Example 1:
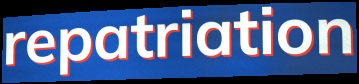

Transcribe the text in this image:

repatriation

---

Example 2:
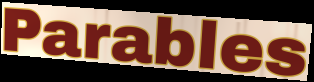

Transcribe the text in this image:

Parables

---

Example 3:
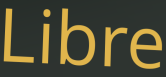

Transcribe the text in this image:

Libre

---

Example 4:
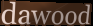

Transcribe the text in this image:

dawood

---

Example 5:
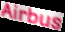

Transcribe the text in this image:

Airbus